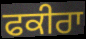
ਫਕੀਰਾ